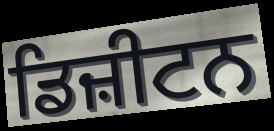
ਡਿਜ਼ੀਟਨ